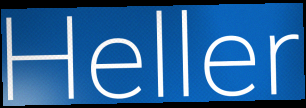
Heller